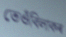
তেওঁবিলাকৰ